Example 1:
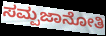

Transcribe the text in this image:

ಸಮ್ಪಜಾನೋತಿ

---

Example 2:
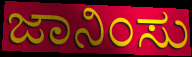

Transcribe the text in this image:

ಜಾನಿಂಸು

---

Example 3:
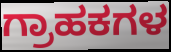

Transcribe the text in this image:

ಗ್ರಾಹಕಗಳ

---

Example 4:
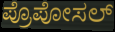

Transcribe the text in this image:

ಪ್ರೊಪೋಸಲ್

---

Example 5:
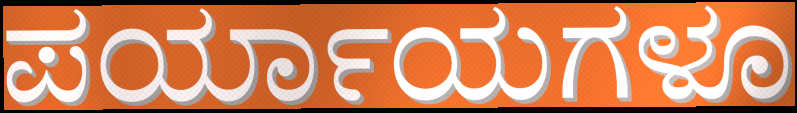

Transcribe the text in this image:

ಪರ್ಯಾಯಗಳೂ